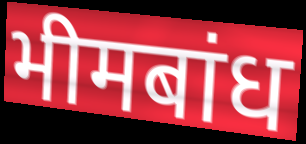
भीमबांध